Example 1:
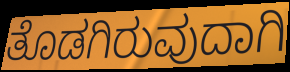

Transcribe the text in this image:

ತೊಡಗಿರುವುದಾಗಿ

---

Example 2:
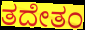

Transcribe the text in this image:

ತದೇತಂ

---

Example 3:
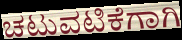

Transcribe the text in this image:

ಚಟುವಟಿಕೆಗಾಗಿ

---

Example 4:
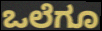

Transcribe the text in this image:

ಒಲೆಗೂ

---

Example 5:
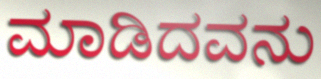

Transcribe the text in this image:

ಮಾಡಿದವನು